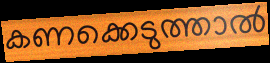
കണക്കെടുത്താൽ